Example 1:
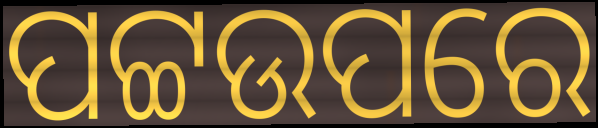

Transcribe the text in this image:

ପଟ୍ଟଉପରେ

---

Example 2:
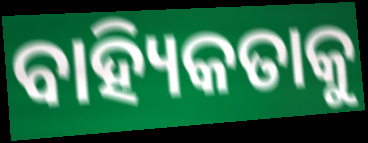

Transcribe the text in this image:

ବାହ୍ୟିକତାକୁ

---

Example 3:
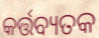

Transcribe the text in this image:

କର୍ତ୍ତବ୍ୟତକ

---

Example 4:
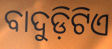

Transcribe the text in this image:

ବାଦୁଡ଼ିଟିଏ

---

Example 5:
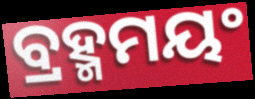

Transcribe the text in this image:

ବ୍ରହ୍ମମୟଂ